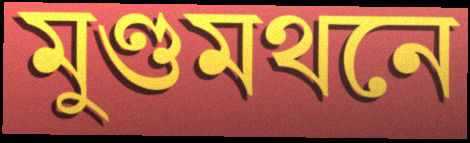
মুণ্ডমথনে